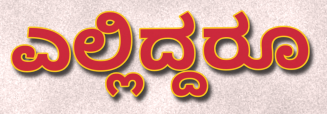
ಎಲ್ಲಿದ್ದರೂ